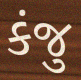
કંજુ